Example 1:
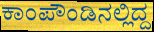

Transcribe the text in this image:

ಕಾಂಪೌಂಡಿನಲ್ಲಿದ್ದ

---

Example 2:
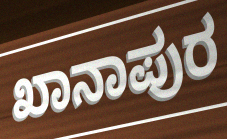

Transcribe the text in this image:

ಖಾನಾಪುರ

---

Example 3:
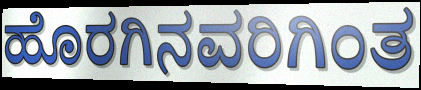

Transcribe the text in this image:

ಹೊರಗಿನವರಿಗಿಂತ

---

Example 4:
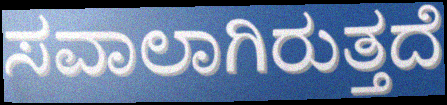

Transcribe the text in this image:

ಸವಾಲಾಗಿರುತ್ತದೆ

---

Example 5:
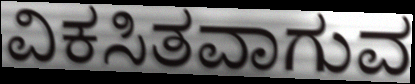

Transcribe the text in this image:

ವಿಕಸಿತವಾಗುವ